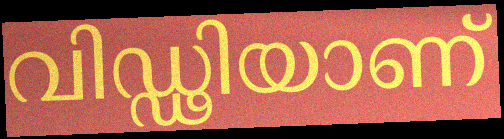
വിഡ്ഢിയാണ്